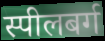
स्पीलबर्ग